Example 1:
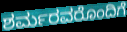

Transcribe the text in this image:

ಶರ್ಮರವರೊಂದಿಗೆ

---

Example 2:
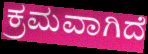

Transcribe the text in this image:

ಕ್ರಮವಾಗಿದೆ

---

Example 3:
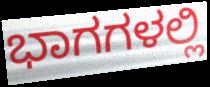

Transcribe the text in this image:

ಭಾಗಗಳಲ್ಲಿ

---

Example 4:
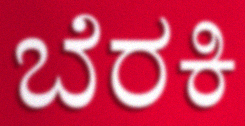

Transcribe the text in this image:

ಬೆರಕಿ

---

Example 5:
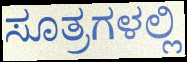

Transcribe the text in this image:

ಸೂತ್ರಗಳಲ್ಲಿ